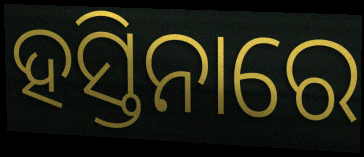
ହସ୍ତିନାରେ